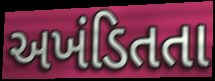
અખંડિતતા